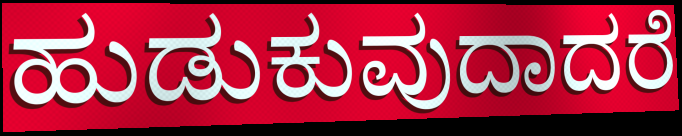
ಹುಡುಕುವುದಾದರೆ